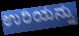
ಉರಿಯನ್ನು